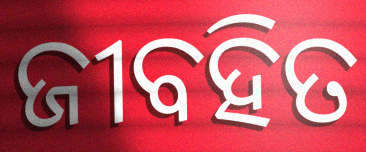
ଜୀବହିତ